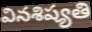
వినశిష్యతి